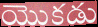
యొకడు